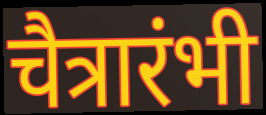
चैत्रारंभी